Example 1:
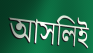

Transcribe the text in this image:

আসলিই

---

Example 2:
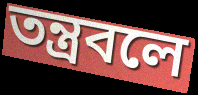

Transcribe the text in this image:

তন্ত্রবলে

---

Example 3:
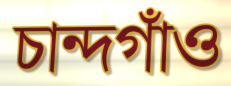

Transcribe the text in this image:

চান্দগাঁও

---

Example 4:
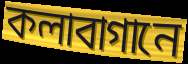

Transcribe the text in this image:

কলাবাগানে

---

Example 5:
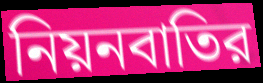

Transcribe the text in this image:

নিয়নবাতির